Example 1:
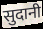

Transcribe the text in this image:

सुदानी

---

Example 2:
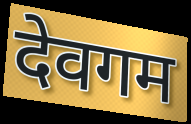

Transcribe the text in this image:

देवगम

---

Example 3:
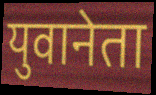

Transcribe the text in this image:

युवानेता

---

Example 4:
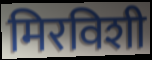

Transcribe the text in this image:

मिरविशी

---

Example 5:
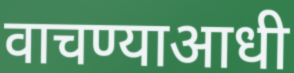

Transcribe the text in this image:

वाचण्याआधी